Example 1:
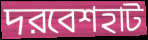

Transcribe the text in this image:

দরবেশহাট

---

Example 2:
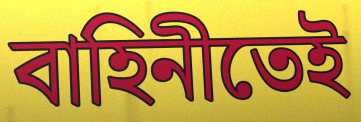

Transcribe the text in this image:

বাহিনীতেই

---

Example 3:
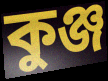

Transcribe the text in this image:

কুঞ্জ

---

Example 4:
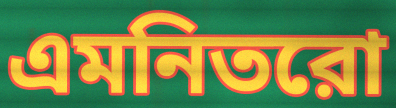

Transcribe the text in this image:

এমনিতরো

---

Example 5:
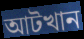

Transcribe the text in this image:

আটখান